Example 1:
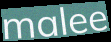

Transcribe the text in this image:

malee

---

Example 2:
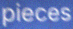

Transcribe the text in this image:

pieces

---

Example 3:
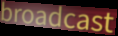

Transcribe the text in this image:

broadcast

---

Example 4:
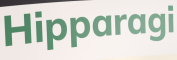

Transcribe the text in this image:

Hipparagi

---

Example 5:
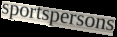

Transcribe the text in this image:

sportspersons